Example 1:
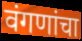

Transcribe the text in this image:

वंगणांचा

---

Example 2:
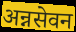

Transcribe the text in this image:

अन्नसेवन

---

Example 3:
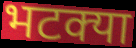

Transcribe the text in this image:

भटक्या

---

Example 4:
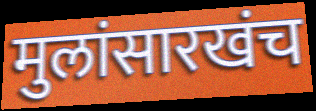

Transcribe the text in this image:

मुलांसारखंच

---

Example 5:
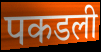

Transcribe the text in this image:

पकडली